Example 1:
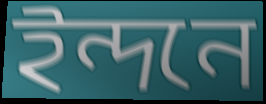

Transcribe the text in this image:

ইন্দনে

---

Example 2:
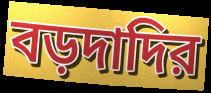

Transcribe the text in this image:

বড়দাদির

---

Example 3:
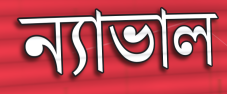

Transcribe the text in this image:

ন্যাভাল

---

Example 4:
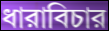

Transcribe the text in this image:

ধারাবিচার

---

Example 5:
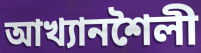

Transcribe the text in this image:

আখ্যানশৈলী